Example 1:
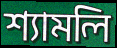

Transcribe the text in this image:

শ্যামলি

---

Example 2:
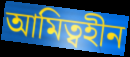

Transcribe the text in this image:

আমিত্বহীন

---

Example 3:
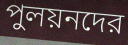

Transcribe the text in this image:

পুলয়নদের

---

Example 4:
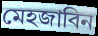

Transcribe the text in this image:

মেহজাবিন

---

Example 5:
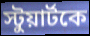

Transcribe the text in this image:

স্টুয়ার্টকে